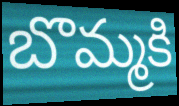
బొమ్మకి